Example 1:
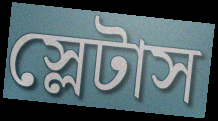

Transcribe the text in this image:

স্লেটাস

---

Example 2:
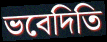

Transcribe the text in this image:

ভবেদিতি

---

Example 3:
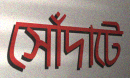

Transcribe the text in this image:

সোঁদাটে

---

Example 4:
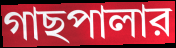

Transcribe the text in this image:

গাছপালার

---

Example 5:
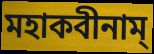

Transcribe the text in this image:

মহাকবীনাম্